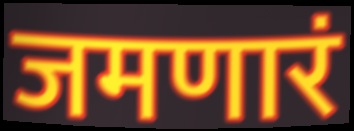
जमणारं